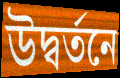
উদ্বর্তনে